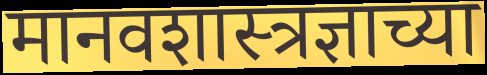
मानवशास्त्रज्ञाच्या